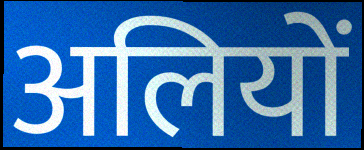
अलियों